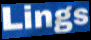
Lings